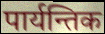
पार्यन्तिक